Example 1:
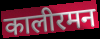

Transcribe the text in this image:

कालीरमन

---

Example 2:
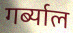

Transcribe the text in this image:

गर्ब्याल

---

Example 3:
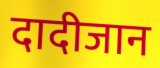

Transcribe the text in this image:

दादीजान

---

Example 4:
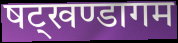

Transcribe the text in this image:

षट्खण्डागम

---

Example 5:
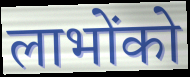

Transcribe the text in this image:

लाभोंको